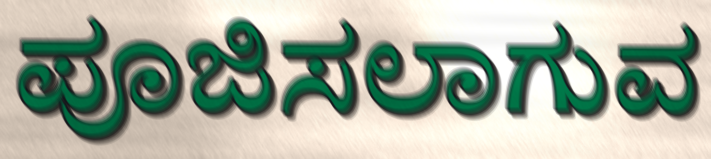
ಪೂಜಿಸಲಾಗುವ